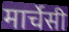
मार्चेसी